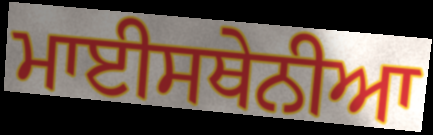
ਮਾਈਸਥੇਨੀਆ